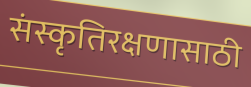
संस्कृतिरक्षणासाठी